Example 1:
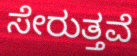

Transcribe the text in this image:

ಸೇರುತ್ತವೆ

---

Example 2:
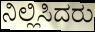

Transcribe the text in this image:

ನಿಲ್ಲಿಸಿದರು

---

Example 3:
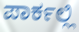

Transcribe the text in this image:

ಪಾರ್ಕಲ್ಲಿ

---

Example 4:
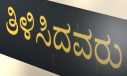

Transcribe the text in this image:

ತಿಳಿಸಿದವರು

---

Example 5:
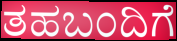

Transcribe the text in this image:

ತಹಬಂದಿಗೆ